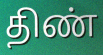
திண்